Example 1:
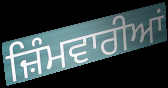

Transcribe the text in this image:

ਜ਼ਿੰਮਵਾਰੀਆਂ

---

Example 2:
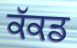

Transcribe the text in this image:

ਕੱਕਡ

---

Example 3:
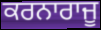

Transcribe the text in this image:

ਕਰਨਾਰਾਜੂ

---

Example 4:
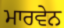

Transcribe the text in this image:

ਮਾਰਵੇਨ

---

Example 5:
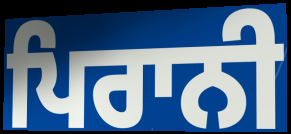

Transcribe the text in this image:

ਪਿਰਾਨੀ